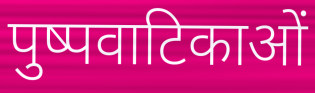
पुष्पवाटिकाओं